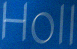
Holl